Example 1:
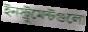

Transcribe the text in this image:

ইনস্ট্রুমেন্টগুলো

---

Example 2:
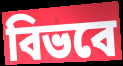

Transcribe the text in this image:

বিভবে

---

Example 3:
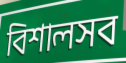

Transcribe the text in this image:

বিশালসব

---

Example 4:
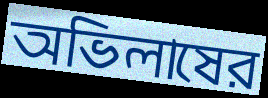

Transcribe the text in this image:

অভিলাষের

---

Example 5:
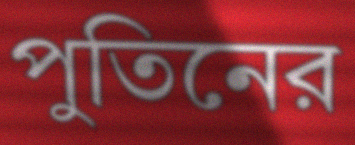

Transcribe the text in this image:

পুতিনের